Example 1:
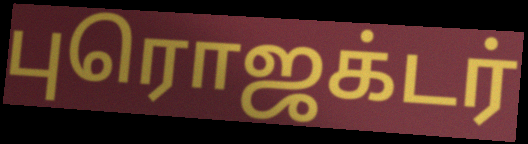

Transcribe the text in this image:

புரொஜக்டர்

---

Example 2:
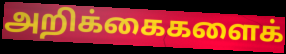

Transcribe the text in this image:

அறிக்கைகளைக்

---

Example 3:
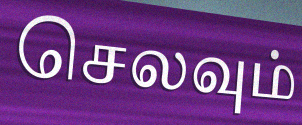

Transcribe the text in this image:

செலவும்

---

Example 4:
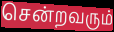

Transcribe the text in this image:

சென்றவரும்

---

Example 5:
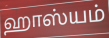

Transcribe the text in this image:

ஹாஸ்யம்